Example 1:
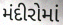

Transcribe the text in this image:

મંદીરોમાં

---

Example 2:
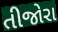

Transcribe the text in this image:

તીજોરા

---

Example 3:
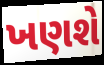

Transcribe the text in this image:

ખણશે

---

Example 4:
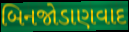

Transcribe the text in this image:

બિનજોડાણવાદ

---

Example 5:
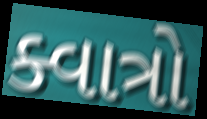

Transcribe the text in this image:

ક્વાત્રો